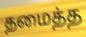
தமைத்த